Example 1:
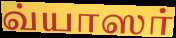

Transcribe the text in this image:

வ்யாஸர்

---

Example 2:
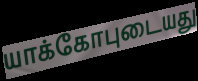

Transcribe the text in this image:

யாக்கோபுடையது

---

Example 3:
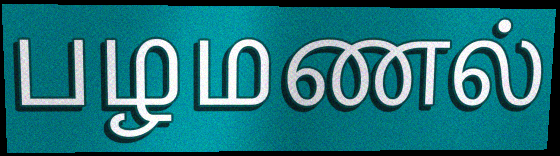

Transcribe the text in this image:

பழமணல்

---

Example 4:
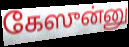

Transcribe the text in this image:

கேஸுன்னு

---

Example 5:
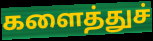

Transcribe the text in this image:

களைத்துச்